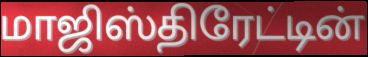
மாஜிஸ்திரேட்டின்